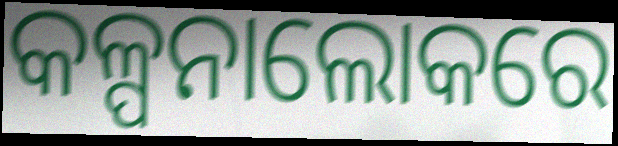
କଳ୍ପନାଲୋକରେ